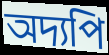
অদ্যপি